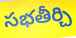
సభతీర్చి